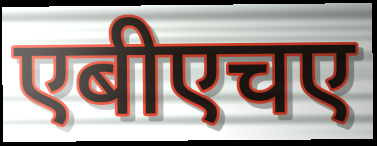
एबीएचए